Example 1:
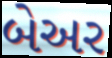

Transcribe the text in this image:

બેઅર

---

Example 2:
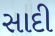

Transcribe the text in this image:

સાદી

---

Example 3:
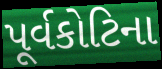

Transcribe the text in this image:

પૂર્વકોટિના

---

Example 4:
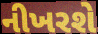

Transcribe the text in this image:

નીખરશે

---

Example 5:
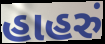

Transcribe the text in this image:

હાહરું